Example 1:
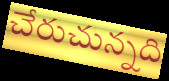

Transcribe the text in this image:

చేరుచున్నది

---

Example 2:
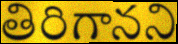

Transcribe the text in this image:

తిరిగానని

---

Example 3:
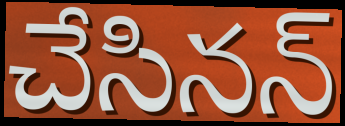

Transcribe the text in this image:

చేసినన్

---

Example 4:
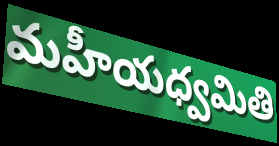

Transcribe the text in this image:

మహీయధ్వమితి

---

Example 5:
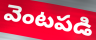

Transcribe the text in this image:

వెంటపడి